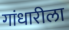
गांधारीला